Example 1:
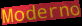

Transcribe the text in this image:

Moderno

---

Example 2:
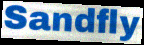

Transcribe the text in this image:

Sandfly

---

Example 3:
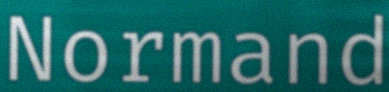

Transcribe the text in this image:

Normand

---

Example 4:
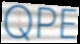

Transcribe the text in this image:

QPE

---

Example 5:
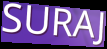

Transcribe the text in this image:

SURAJ